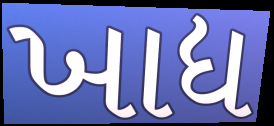
ખાદ્ય